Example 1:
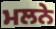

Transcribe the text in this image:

ਮਲਨੇ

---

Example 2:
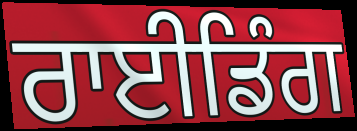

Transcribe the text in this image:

ਰਾਈਡਿੰਗ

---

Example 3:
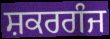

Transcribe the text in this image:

ਸ਼ਕਰਗੰਜ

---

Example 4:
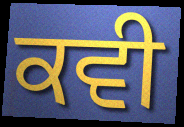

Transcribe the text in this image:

ਕਵੀ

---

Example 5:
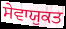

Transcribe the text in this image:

ਸੇਵਾਯੁਕਤ